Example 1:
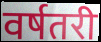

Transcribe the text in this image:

वर्षतरी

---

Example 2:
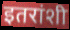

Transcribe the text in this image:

इतरांशी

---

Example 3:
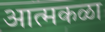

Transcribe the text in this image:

आत्मकळा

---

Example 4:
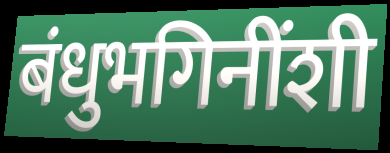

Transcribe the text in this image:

बंधुभगिनींशी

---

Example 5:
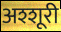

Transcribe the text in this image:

अश्‍शूरी